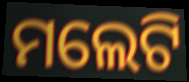
ମଲେଟି